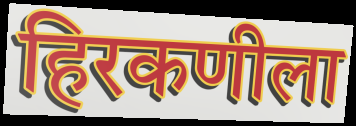
हिरकणीला